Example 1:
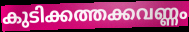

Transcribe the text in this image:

കുടിക്കത്തക്കവണ്ണം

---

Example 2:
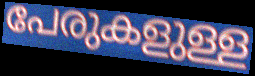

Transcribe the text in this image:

പേരുകളുള്ള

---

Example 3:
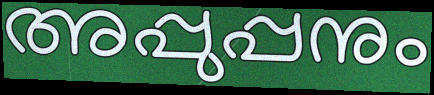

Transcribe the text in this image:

അപ്പുപ്പനും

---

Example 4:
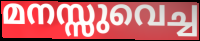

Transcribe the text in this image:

മനസ്സുവെച്ച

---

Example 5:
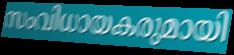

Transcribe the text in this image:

സംവിധായകരുമായി